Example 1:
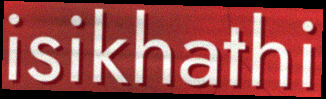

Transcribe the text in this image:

isikhathi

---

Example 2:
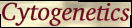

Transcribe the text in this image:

Cytogenetics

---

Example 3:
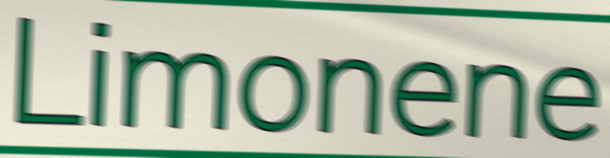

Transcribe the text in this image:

Limonene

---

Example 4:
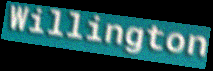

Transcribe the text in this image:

Willington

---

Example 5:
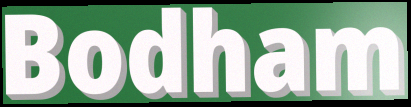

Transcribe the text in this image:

Bodham